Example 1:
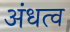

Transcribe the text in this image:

अंधत्व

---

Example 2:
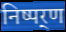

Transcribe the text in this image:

निष्पर्ण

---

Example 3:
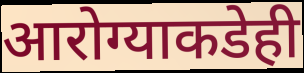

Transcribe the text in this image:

आरोग्याकडेही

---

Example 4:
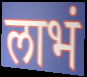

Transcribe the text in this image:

लाभं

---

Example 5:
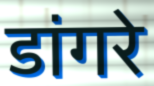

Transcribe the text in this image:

डांगरे